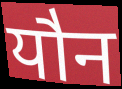
यौन